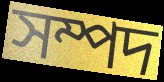
সম্পদ